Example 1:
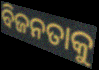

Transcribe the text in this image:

ବିଜନତାକୁ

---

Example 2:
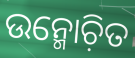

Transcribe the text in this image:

ଉନ୍ମୋଚ଼ିତ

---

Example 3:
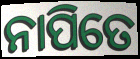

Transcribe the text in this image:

ନାପିତେ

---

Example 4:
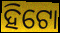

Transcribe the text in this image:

ହିଟୋ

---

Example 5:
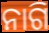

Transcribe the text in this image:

ନାଗି